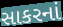
સાકરનાં